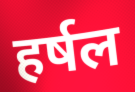
हर्षल